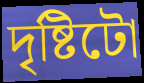
দৃষ্টিটো